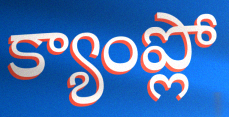
క్యాంప్లో